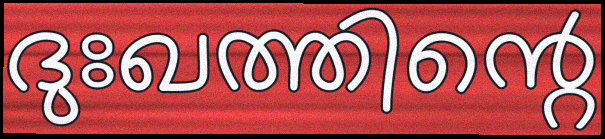
ദുഃഖത്തിന്റെ